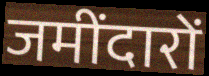
जमींदारों